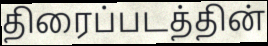
திரைப்படத்தின்